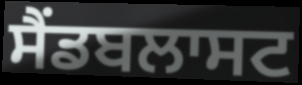
ਸੈਂਡਬਲਾਸਟ